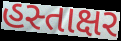
હસ્તાક્ષર